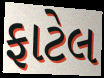
ફાટેલ